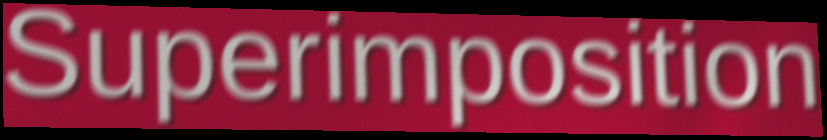
Superimposition